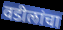
वडीलांचा